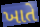
ખાતે